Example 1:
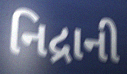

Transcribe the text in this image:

નિદ્રાની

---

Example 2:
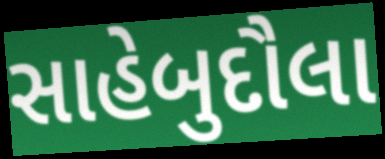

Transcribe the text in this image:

સાહેબુદૌલા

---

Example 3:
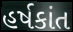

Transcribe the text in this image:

હર્ષકાંત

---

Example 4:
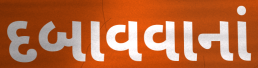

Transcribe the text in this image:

દબાવવાનાં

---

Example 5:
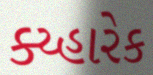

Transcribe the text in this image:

ક્ય્હારેક